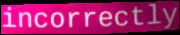
incorrectly